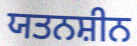
ਯਤਨਸ਼ੀਨ